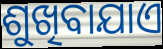
ଶୁଖିବାଯାଏ